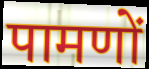
पामणों